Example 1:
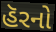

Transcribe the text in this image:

હૅરનો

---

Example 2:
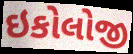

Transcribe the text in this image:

ઇકોલોજી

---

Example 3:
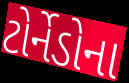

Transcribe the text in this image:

ટોર્નેડોના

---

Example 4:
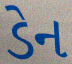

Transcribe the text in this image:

ડેન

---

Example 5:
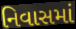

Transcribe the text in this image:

નિવાસમાં